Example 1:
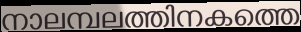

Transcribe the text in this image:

നാലമ്പലത്തിനകത്തെ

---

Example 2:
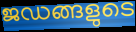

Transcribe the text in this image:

ജഡങ്ങളുടെ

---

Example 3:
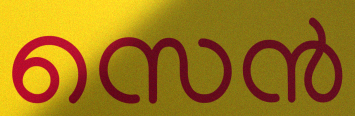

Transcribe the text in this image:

സെൻ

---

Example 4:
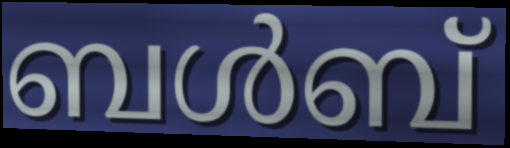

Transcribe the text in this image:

ബൾബ്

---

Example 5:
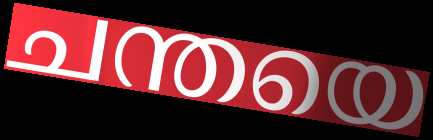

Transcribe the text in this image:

ചന്തയെ